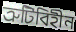
ত্রুটিবিহীন